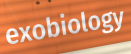
exobiology